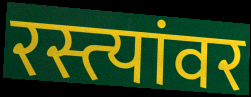
रस्त्यांवर